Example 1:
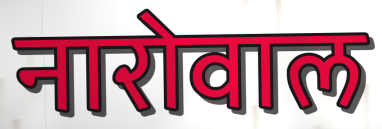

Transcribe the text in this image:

नारोवाल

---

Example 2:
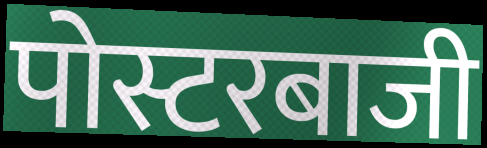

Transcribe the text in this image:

पोस्टरबाजी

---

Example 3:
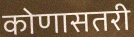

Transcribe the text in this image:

कोणासतरी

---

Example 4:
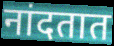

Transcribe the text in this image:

नांदतात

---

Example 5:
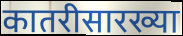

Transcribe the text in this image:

कातरीसारख्या